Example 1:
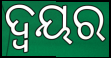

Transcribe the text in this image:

ଦ୍ଵୟର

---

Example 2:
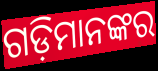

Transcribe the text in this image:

ଗଡ଼ିମାନଙ୍କର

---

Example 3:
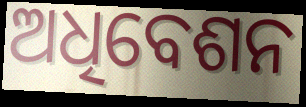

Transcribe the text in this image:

ଅଧିବେଶନ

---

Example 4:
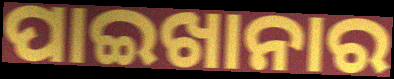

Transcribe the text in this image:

ପାଇଖାନାର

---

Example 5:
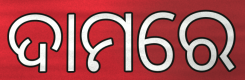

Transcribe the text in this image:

ଦାମରେ